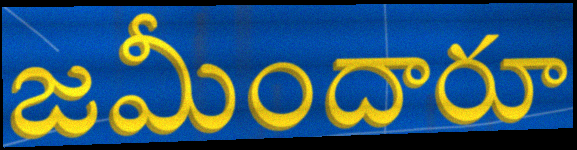
జమీందారూ